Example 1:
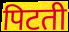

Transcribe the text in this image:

पिटती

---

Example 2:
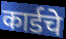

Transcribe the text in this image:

कार्डचे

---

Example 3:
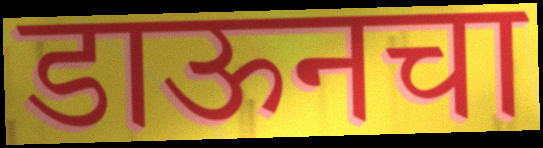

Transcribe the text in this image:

डाऊनचा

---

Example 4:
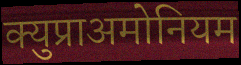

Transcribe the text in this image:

क्युप्राअमोनियम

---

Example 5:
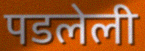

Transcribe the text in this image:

पडलेली